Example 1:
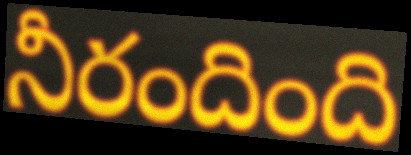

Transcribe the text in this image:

నీరందింది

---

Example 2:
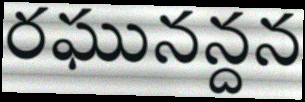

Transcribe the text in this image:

రఘునన్దన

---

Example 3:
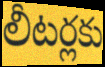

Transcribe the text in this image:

లీటర్లకు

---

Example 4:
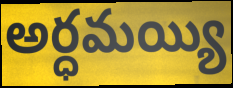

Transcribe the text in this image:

అర్ధమయ్యి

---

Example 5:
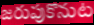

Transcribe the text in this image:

జరుపుకొనుట